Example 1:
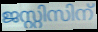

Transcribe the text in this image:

ജസ്റ്റിസിന്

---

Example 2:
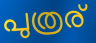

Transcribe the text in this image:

പുത്രര്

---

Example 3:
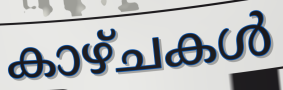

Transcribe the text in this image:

കാഴ്ചകൾ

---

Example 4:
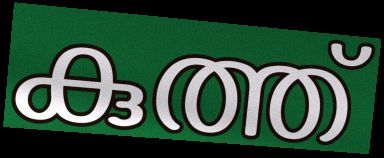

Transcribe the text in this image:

കുത്ത്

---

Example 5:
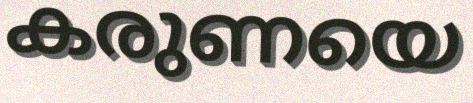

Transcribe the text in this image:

കരുണയെ